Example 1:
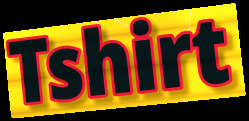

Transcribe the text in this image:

Tshirt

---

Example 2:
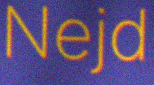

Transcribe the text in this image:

Nejd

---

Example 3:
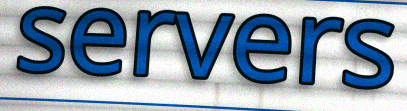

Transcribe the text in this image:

servers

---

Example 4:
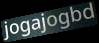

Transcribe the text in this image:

jogajogbd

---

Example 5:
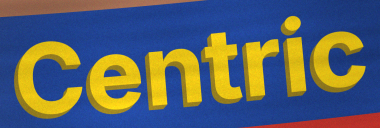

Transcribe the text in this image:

Centric